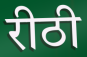
रीठी